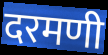
दरमणी